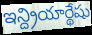
ఇన్ద్రియార్థేషు